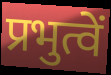
प्रभुत्वें